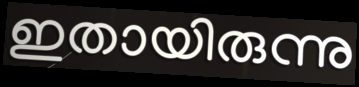
ഇതായിരുന്നു